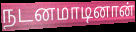
நடனமாடினான்